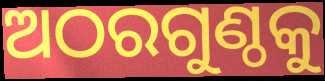
ଅଠରଗୁଣ୍ଠକୁ